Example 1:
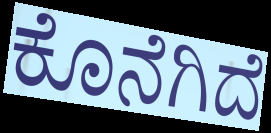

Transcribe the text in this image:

ಕೊನೆಗಿದೆ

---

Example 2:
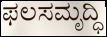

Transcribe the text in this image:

ಫಲಸಮೃದ್ಧಿ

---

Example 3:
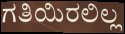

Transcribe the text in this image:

ಗತಿಯಿರಲಿಲ್ಲ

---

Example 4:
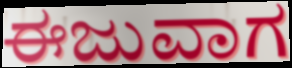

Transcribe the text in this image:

ಈಜುವಾಗ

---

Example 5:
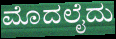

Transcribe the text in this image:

ಮೊದಲೈದು